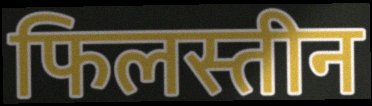
फिलस्तीन